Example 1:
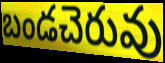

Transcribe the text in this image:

బండచెరువు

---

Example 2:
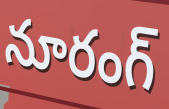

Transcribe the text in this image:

నూరంగ్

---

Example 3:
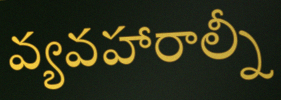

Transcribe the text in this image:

వ్యవహారాల్నీ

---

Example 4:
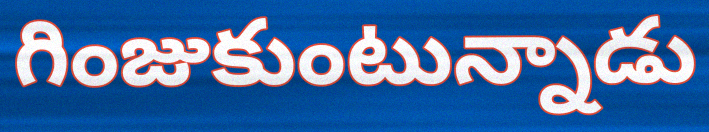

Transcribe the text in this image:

గింజుకుంటున్నాడు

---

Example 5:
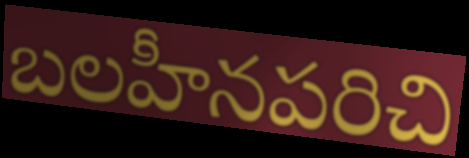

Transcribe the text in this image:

బలహీనపరిచి